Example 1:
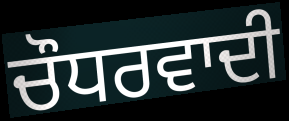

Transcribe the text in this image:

ਚੌਧਰਵਾਦੀ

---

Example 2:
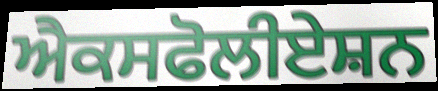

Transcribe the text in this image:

ਐਕਸਫੋਲੀਏਸ਼ਨ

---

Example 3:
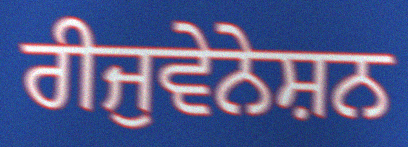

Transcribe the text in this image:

ਰੀਜੁਵੇਨੇਸ਼ਨ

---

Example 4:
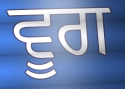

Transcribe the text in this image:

ਵੂਗ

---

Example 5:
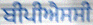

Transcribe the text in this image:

ਬੀਪੀਐਸਸੀ